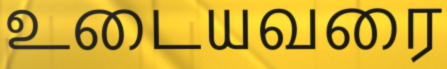
உடையவரை